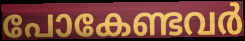
പോകേണ്ടവർ